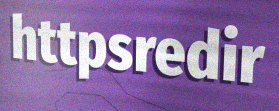
httpsredir